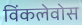
विंकलेवोस